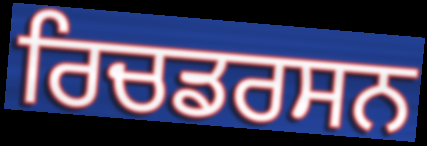
ਰਿਚਡਰਸਨ